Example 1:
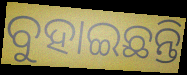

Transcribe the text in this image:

ବୁହାଇଛନ୍ତି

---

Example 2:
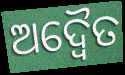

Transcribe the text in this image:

ଅଦ୍ୱୈତ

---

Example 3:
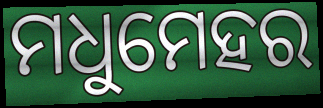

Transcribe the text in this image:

ମଧୁମେହର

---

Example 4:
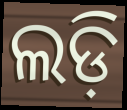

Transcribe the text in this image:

ଲଡ଼ି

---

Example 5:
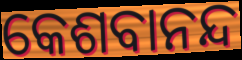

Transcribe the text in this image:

କେଶବାନନ୍ଦ